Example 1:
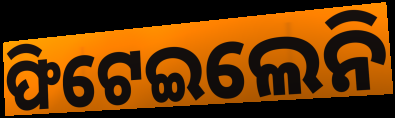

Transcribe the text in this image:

ଫିଟେଇଲେନି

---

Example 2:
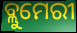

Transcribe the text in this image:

ବ୍ଲୁମେରୀ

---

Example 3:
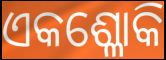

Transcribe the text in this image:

ଏକଶ୍ଳୋକି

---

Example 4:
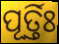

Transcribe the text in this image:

ପୂର୍ତ୍ତିଃ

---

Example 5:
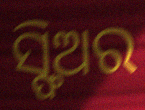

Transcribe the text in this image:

ସ୍ଫିଅର